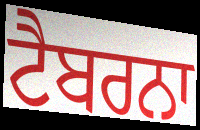
ਟੈਬਰਨਾ